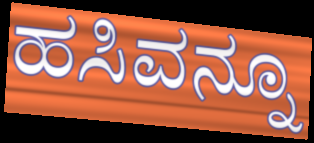
ಹಸಿವನ್ನೂ